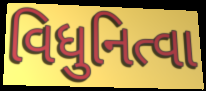
વિધુનિત્વા